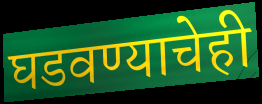
घडवण्याचेही